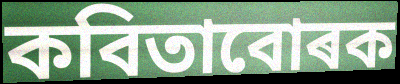
কবিতাবোৰক